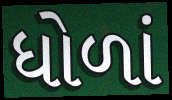
ધોળાં